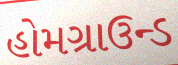
હોમગ્રાઉન્ડ